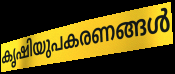
കൃഷിയുപകരണങ്ങൾ